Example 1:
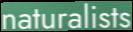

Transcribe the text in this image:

naturalists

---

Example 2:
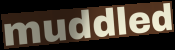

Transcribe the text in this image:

muddled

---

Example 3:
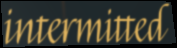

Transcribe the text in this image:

intermitted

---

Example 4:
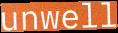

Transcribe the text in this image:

unwell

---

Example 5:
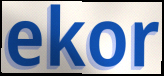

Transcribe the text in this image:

ekor